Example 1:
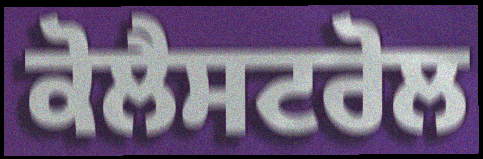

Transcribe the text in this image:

ਕੋਲੈਸਟਰੋਲ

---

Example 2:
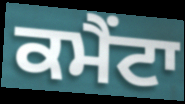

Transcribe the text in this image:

ਕਮੈਂਟਾ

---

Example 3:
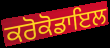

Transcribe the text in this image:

ਕਰੋਕੋਡਾਇਲ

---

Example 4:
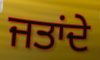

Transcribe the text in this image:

ਜਤਾਂਦੇ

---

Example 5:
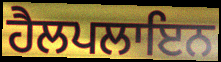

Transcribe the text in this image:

ਹੈਲਪਲਾਇਨ